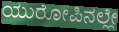
ಯುರೋಪಿನಲ್ಲೇ